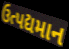
ઉત્પદ્યમાન